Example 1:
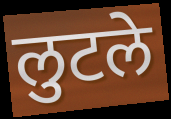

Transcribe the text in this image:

लुटले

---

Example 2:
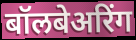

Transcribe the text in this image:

बॉलबेअरिंग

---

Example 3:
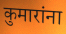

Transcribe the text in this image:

कुमारांना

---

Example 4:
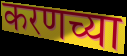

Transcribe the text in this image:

करणच्या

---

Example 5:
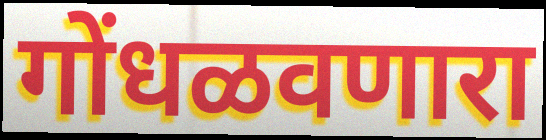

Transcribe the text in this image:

गोंधळवणारा